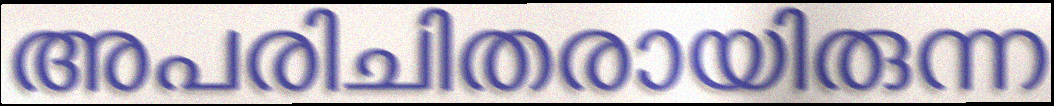
അപരിചിതരായിരുന്ന